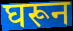
घरून